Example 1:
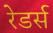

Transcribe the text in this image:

रेडर्स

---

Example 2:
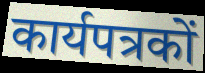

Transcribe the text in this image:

कार्यपत्रकों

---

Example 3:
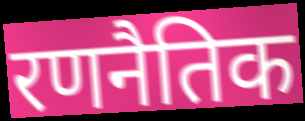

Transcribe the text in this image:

रणनैतिक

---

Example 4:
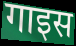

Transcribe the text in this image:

गाइस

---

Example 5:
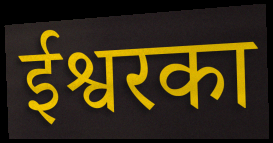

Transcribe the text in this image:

ईश्वरका